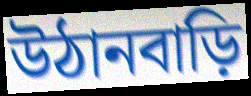
উঠানবাড়ি